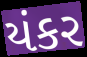
યંકર